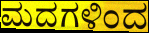
ಮದಗಳಿಂದ